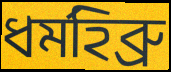
ধৰ্মহিব্ৰু